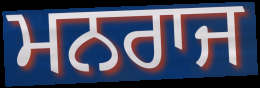
ਮਨਰਾਜ